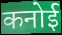
कनोई